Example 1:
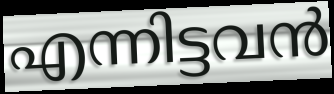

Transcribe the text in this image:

എന്നിട്ടവൻ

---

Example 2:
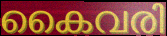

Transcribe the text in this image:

കൈവരി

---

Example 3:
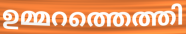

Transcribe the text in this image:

ഉമ്മറത്തെത്തി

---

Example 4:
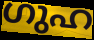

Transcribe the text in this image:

ഗുഹ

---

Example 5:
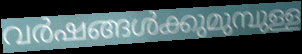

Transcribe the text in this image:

വർഷങ്ങൾക്കുമുമ്പുള്ള